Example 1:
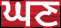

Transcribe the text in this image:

ਘਣ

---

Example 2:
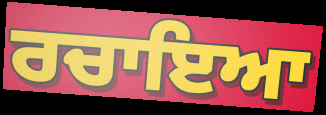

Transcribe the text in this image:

ਰਚਾਇਆ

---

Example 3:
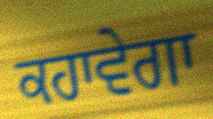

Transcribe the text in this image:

ਕਹਾਵੇਗਾ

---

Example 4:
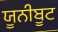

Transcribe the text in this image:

ਯੂਨੀਬੂਟ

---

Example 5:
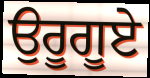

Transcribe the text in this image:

ਉਰੂਗੂਏ